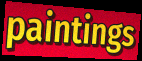
paintings